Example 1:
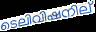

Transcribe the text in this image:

ടെലിവിഷനില്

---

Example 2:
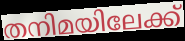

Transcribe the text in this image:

തനിമയിലേക്ക്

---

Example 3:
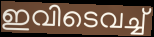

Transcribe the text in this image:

ഇവിടെവച്ച്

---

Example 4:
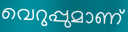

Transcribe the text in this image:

വെറുപ്പുമാണ്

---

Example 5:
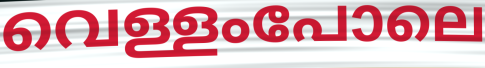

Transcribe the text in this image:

വെള്ളംപോലെ